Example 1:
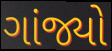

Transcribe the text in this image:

ગાંજ્યો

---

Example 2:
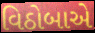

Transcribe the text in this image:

વિઠોબાએ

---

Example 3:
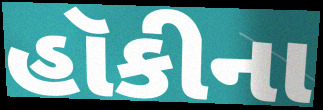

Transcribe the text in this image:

હૉકીના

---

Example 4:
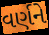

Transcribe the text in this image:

વર્ણને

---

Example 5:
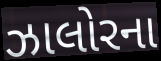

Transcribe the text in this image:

ઝાલોરના